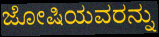
ಜೋಷಿಯವರನ್ನು